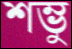
শম্ভু